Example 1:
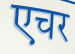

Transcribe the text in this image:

एचर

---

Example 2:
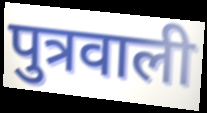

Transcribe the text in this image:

पुत्रवाली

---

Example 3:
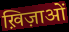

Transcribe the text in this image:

ख़िज़ाओं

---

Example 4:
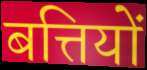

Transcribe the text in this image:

बत्तियों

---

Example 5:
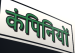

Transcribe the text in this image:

कंपिनियों